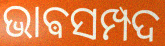
ଭାଵସମ୍ପଦ